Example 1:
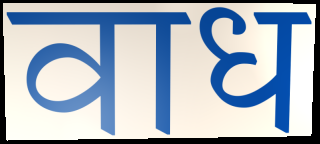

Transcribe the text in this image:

वाध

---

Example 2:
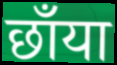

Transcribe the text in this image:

छाँया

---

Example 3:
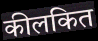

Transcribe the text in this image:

कीलकित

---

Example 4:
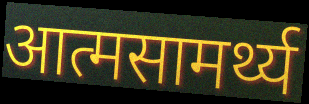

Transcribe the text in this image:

आत्मसामर्थ्य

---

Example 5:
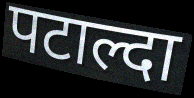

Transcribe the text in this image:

पटाल्दा